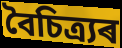
বৈচিত্ৰ্যৰ